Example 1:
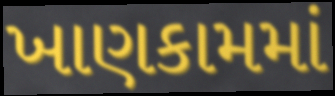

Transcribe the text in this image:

ખાણકામમાં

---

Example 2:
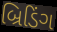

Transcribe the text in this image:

બ્રિડિંગ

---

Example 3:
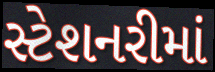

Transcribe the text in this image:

સ્ટેશનરીમાં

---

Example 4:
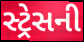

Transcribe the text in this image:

સ્ટ્રેસની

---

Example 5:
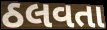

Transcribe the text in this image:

ઠલવતા